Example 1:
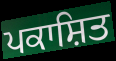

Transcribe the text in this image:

ਪਕਾਸ਼ਿਤ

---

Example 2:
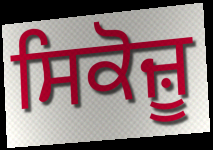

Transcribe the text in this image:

ਸਿਕੋਜ਼ੂ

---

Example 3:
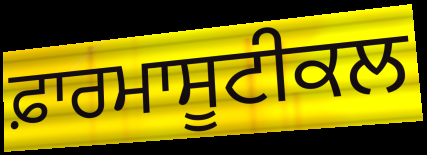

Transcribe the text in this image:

ਫ਼ਾਰਮਾਸੂਟੀਕਲ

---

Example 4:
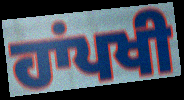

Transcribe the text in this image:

ਹਾਂਪਖੀ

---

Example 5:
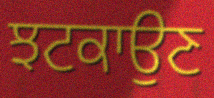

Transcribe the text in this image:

ਝਟਕਾਉਣ